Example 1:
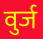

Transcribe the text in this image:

वुर्ज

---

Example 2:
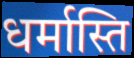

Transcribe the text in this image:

धर्मास्ति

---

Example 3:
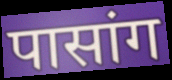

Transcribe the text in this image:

पासांग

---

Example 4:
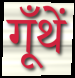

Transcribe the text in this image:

गूँथें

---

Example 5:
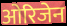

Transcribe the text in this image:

ओरिजेन